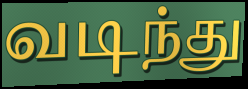
வடிந்து